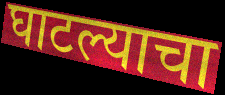
घाटल्याचा